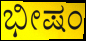
ಭೀಷಂ